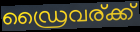
ഡ്രൈവര്ക്ക്